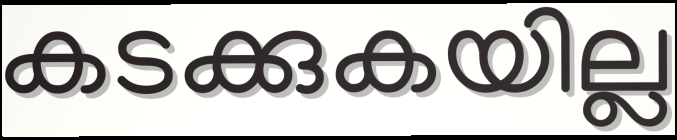
കടക്കുകയില്ല